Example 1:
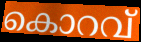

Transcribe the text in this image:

കൊറവ്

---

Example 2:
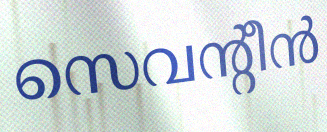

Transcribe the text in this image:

സെവന്റീൻ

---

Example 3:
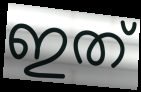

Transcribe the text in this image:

ഇത്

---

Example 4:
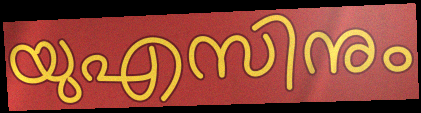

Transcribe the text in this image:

യുഎസിനും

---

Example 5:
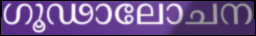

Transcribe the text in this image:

ഗൂഢാലോചന